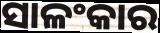
ସାଳଂକାର